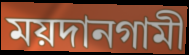
ময়দানগামী